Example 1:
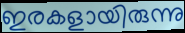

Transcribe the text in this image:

ഇരകളായിരുന്നു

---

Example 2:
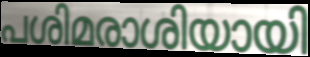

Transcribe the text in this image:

പശിമരാശിയായി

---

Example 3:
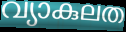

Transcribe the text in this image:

വ്യാകുലത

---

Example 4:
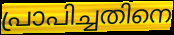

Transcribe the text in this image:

പ്രാപിച്ചതിനെ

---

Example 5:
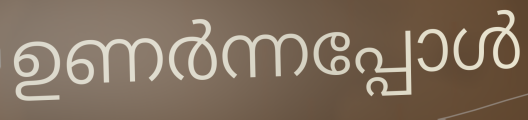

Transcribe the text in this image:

ഉണർന്നപ്പോൾ